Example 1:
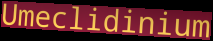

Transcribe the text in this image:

Umeclidinium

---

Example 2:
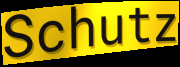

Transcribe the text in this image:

Schutz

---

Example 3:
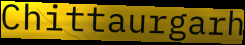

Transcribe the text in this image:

Chittaurgarh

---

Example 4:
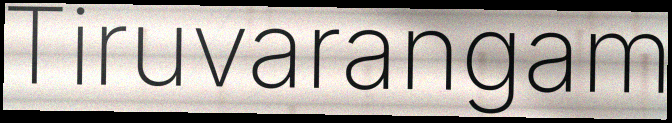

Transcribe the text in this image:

Tiruvarangam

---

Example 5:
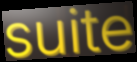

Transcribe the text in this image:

suite